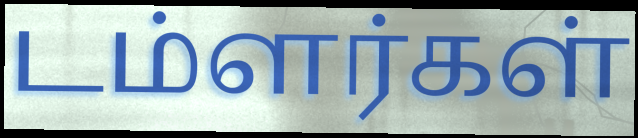
டம்ளர்கள்